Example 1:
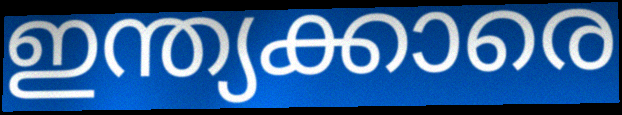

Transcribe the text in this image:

ഇന്ത്യക്കാരെ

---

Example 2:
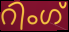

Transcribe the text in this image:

റിംഗ്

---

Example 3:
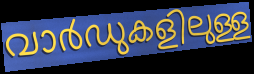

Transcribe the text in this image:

വാർഡുകളിലുള്ള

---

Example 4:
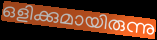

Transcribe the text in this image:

ഒളിക്കുമായിരുന്നു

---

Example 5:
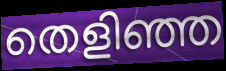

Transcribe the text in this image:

തെളിഞ്ഞ